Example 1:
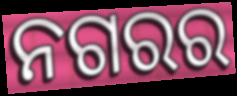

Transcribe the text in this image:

ନଗରର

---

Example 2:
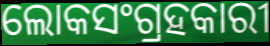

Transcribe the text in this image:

ଲୋକସଂଗ୍ରହକାରୀ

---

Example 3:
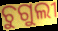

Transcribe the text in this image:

ଚୁଗୁଲୀ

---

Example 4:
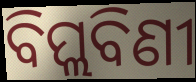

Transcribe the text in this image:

ବିପ୍ଲବିଣୀ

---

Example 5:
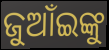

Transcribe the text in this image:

ଜୁଆଁଇଙ୍କୁ